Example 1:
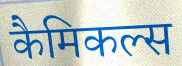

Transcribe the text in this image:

कैमिकल्स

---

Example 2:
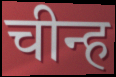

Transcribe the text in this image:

चीन्ह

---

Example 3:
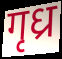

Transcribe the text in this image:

गृध्र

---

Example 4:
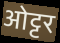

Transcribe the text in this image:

ओट्टर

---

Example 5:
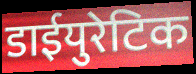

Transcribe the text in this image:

डाईयुरेटिक